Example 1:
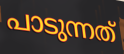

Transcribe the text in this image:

പാടുന്നത്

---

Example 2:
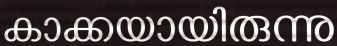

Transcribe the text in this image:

കാക്കയായിരുന്നു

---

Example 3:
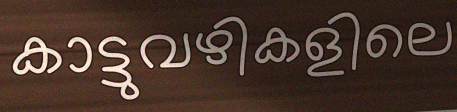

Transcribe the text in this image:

കാട്ടുവഴികളിലെ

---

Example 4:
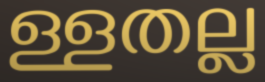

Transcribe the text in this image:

ള്ളതല്ല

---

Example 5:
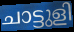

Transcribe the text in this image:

ചാട്ടുളി